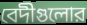
বেদীগুলোর